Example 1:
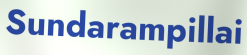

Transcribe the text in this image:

Sundarampillai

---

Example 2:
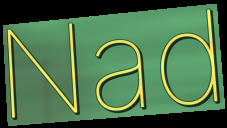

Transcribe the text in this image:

Nad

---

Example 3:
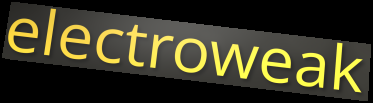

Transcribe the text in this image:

electroweak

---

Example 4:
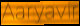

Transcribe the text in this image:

Aaryavir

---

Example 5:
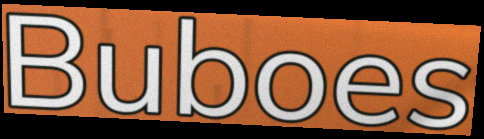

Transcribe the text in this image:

Buboes